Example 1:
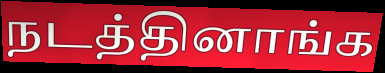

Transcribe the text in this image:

நடத்தினாங்க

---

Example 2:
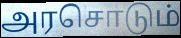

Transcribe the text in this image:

அரசொடும்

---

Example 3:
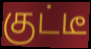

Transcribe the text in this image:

குட்டீ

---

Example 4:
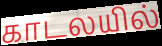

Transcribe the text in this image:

காடலயில்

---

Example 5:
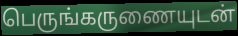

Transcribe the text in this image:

பெருங்கருணையுடன்